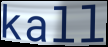
kall